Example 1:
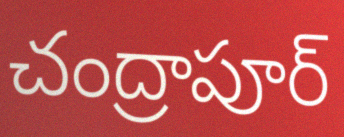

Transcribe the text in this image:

చంద్రాపూర్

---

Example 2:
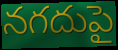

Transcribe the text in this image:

నగదుపై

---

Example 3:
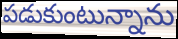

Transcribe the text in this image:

పడుకుంటున్నాను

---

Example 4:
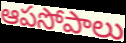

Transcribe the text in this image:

ఆపసోపాలు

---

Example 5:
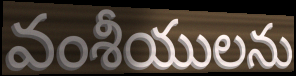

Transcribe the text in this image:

వంశీయులను